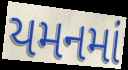
યમનમાં